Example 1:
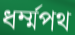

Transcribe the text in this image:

ধর্ম্মপথ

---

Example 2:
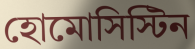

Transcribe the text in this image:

হোমোসিস্টিন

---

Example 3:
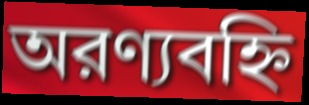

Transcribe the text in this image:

অরণ্যবহ্নি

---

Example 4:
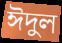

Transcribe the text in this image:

ঈদুল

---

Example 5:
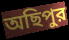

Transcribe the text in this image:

অছিপুর